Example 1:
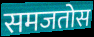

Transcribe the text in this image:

समजतोस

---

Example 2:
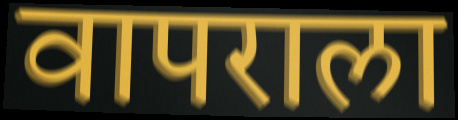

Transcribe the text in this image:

वापराला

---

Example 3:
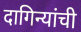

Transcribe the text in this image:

दागिन्यांची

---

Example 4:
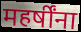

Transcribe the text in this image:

महर्षींना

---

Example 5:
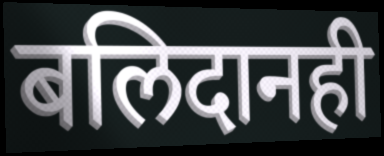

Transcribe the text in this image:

बलिदानही